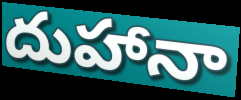
దుహానా